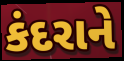
કંદરાને